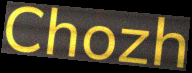
Chozh